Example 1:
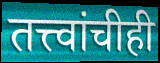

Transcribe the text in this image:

तत्त्वांचीही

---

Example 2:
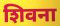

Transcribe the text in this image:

शिवना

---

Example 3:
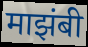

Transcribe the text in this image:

माझंबी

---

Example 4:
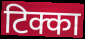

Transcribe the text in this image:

टिक्का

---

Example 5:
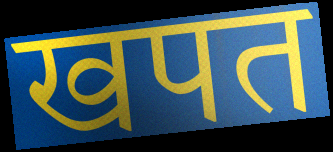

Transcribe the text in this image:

खपत